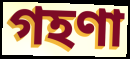
গহণা